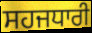
ਸਹਜਧਾਰੀ